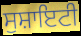
ਸੁਸ਼ਾਇਟੀ